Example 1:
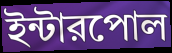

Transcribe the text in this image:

ইন্টারপোল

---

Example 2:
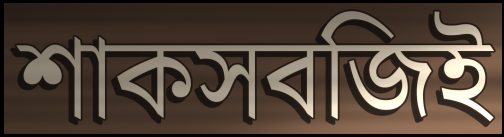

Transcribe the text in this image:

শাকসবজিই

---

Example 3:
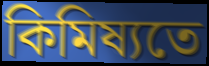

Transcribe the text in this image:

কিমিষ্যতে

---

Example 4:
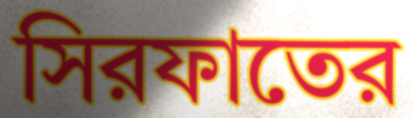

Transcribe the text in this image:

সিরফাতের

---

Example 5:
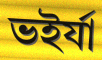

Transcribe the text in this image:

ভইর্যা